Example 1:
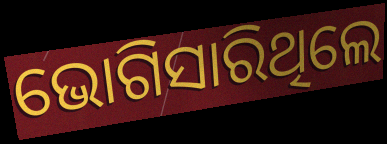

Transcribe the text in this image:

ଭୋଗିସାରିଥିଲେ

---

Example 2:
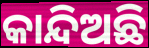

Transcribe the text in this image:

କାନ୍ଦିଅଛି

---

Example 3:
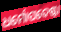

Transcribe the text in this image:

ଧର୍ମୋପଦେଷ୍ଟା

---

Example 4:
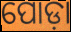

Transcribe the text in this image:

ପୋଡ଼ା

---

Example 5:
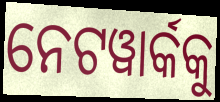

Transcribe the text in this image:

ନେଟୱାର୍କକୁ